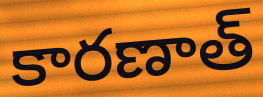
కారణాత్